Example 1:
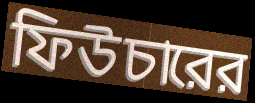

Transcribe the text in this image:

ফিউচারের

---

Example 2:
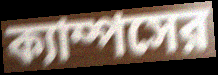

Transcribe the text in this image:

ক্যাম্পসের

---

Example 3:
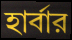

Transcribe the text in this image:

হার্বার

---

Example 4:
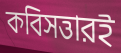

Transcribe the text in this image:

কবিসত্তারই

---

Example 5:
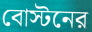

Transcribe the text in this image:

বোস্টনের